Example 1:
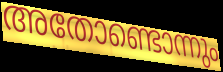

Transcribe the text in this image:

അതോണ്ടൊന്നും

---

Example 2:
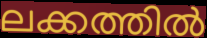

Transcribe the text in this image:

ലക്കത്തിൽ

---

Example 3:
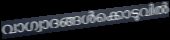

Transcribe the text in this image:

വാഗ്വാദങ്ങൾക്കൊടുവിൽ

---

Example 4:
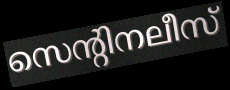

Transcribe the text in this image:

സെന്റിനലീസ്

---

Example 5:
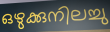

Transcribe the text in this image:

ഒഴുക്കുനിലച്ചു